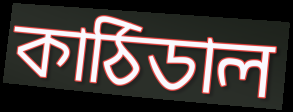
কাঠিডাল